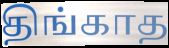
திங்காத